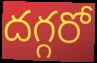
దగ్గరో